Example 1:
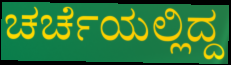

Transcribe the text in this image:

ಚರ್ಚೆಯಲ್ಲಿದ್ದ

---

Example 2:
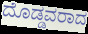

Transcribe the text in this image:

ದೊಡ್ಡವರಾದ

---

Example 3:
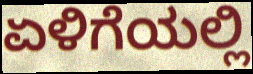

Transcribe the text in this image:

ಏಳಿಗೆಯಲ್ಲಿ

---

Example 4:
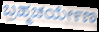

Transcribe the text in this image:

ಬ್ರಹ್ಮಚರ್ಯೇಣ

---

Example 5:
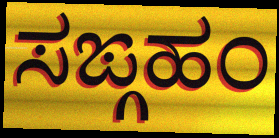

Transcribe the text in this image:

ಸಙ್ಗಹಂ